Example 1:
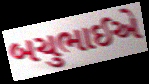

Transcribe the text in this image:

બચુભાઈએ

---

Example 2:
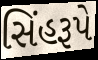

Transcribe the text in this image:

સિંહરૂપે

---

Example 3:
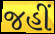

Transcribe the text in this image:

જહીં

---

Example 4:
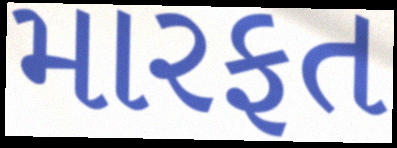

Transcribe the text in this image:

મારફત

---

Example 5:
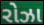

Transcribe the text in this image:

રોઝા